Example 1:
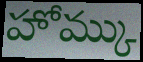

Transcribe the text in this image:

హోమ్కు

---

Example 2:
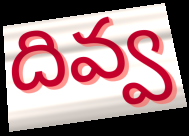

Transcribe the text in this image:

దివ్వ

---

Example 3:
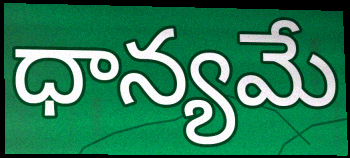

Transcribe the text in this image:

ధాన్యమే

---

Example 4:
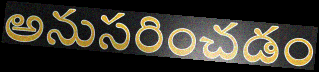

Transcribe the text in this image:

అనుసరించడం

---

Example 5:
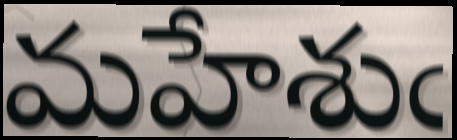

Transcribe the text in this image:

మహేశుఁ